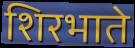
शिरभाते